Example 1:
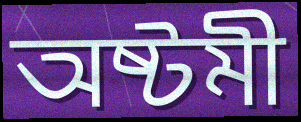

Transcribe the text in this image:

অষ্টমী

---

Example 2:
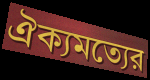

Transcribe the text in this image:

ঐক্যমত্যের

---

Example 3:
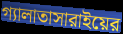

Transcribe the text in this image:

গ্যালাতাসারাইয়ের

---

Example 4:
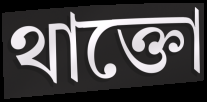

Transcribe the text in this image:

থাক্তো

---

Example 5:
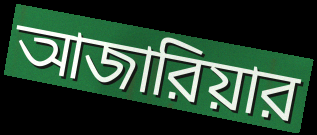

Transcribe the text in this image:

আজারিয়ার